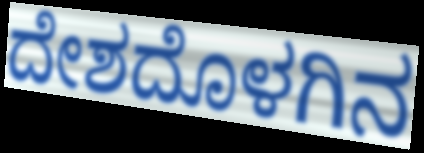
ದೇಶದೊಳಗಿನ